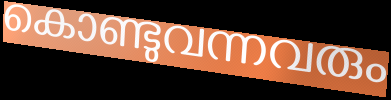
കൊണ്ടുവന്നവരും